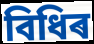
বিধিৰ